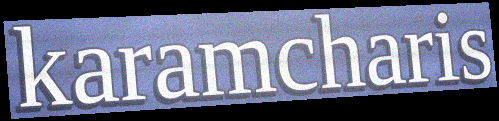
karamcharis